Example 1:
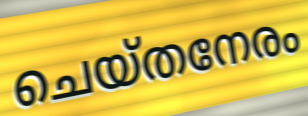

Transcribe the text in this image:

ചെയ്തനേരം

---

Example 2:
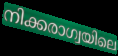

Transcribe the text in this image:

നിക്കരാഗ്വയിലെ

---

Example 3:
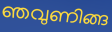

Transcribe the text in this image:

ഞവുണിങ്ങ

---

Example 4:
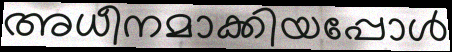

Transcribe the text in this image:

അധീനമാക്കിയപ്പോൾ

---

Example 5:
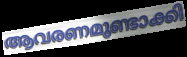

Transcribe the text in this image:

ആവരണമുണ്ടാക്കി